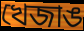
খেজাঙ